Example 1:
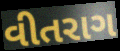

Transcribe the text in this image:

વીતરાગ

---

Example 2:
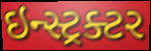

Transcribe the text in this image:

ઇન્સ્ટ્રક્ટર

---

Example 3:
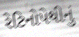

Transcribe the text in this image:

રેટિનોપેથીનું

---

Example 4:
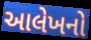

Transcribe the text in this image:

આલેખનો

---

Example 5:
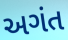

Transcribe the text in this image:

અગંત